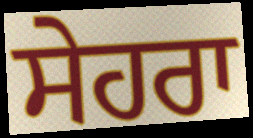
ਸੇਹਰਾ